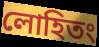
লোহিতং